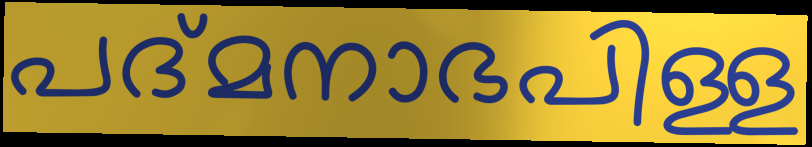
പദ്മനാഭപിള്ള